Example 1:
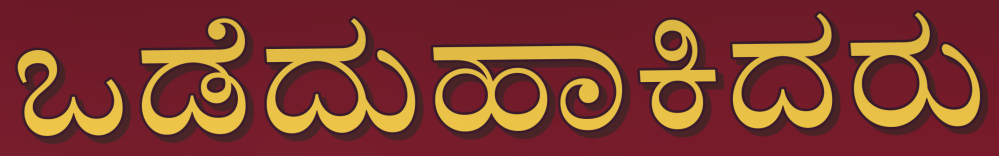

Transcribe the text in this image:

ಒಡೆದುಹಾಕಿದರು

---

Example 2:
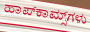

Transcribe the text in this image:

ಹಾಪ್‌ಕಾಮ್ಸ್‌ಗಳು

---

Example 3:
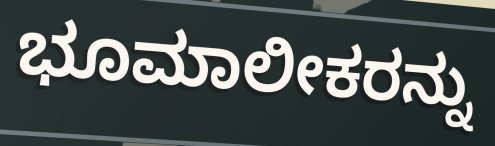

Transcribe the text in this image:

ಭೂಮಾಲೀಕರನ್ನು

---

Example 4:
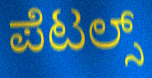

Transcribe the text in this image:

ಪೆಟಲ್ಸ್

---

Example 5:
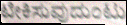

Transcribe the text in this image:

ಟೀಕಿಸುವುದುಂಟು